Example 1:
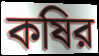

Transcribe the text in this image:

কষির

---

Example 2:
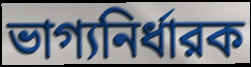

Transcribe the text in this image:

ভাগ্যনির্ধারক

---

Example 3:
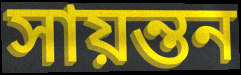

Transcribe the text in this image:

সায়ন্তন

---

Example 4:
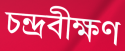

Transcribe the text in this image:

চন্দ্রবীক্ষণ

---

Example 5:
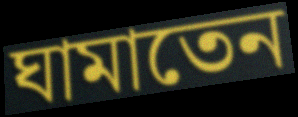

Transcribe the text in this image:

ঘামাতেন